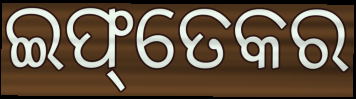
ଇଫ୍‌ତେକର